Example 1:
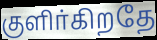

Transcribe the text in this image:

குளிர்கிறதே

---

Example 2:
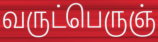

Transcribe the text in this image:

வருட்பெருஞ்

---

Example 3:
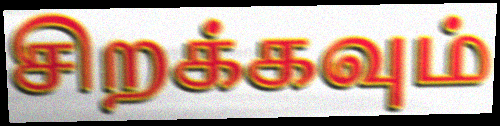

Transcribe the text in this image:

சிறக்கவும்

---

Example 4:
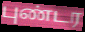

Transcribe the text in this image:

புண்டர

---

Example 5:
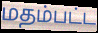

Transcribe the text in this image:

மதம்பட்ட